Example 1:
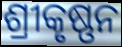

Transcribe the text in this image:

ଶ୍ରୀକୃଷ୍ଣନ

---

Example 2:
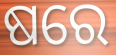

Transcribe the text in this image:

ଷରେ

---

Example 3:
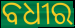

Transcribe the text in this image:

ବଧୀର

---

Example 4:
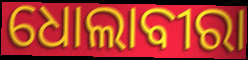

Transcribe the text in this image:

ଧୋଲାବୀରା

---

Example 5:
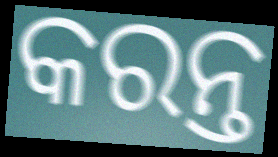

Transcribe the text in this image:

କରନ୍ତ